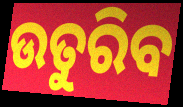
ଉତୁରିବ